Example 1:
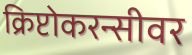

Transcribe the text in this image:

क्रिप्टोकरन्सीवर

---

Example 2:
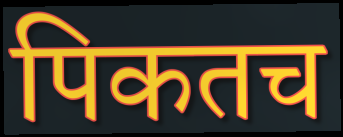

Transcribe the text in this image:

पिकतच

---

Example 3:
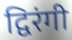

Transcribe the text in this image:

द्विरंगी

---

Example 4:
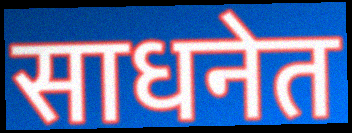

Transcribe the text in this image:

साधनेत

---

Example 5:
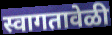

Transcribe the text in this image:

स्वागतावेळी